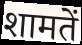
शामतें